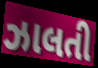
ઝાલતી